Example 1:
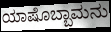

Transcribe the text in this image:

ಯಾಷೊಬ್ಬಾಮನು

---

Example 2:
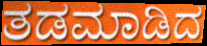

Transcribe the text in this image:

ತಡಮಾಡಿದ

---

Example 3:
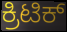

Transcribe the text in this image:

ಕ್ರಿಟಿಕ್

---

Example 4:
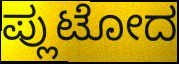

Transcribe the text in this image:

ಪ್ಲುಟೋದ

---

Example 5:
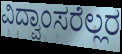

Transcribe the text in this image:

ವಿದ್ವಾಂಸರೆಲ್ಲರ